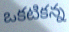
ఒకటికన్న